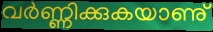
വർണ്ണിക്കുകയാണു്